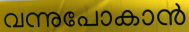
വന്നുപോകാൻ